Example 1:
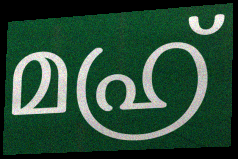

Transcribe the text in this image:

മഹ്ര്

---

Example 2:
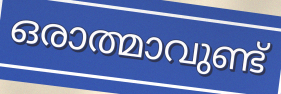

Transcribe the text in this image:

ഒരാത്മാവുണ്ട്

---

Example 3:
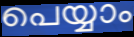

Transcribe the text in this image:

പെയ്യാം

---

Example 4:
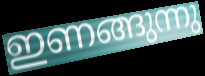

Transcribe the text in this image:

ഇണങ്ങുന്നു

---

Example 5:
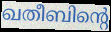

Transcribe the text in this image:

ഖതീബിന്റെ